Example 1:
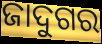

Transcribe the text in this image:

ଜାଦୁଗର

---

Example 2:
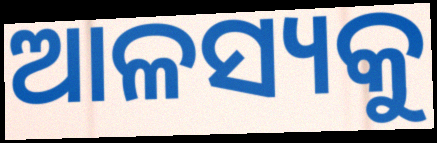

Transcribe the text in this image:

ଆଳସ୍ୟକୁ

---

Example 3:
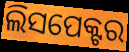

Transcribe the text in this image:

ଲିସପେକ୍ଟର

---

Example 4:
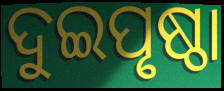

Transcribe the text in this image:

ଦୁଇପୃଷ୍ଠା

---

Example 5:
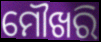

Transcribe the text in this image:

ମୌଖରି